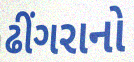
ઢીંગરાનો